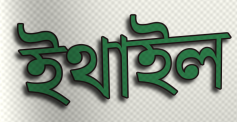
ইথাইল